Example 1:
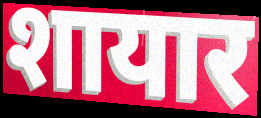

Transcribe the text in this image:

शायार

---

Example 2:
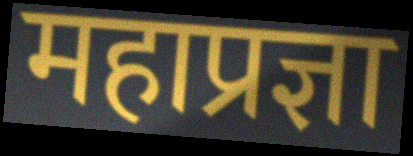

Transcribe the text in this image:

महाप्रज्ञा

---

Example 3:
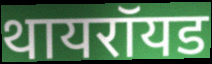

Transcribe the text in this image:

थायरॉयड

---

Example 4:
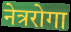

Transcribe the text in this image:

नेत्ररोगा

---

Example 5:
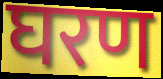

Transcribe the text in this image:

घरण